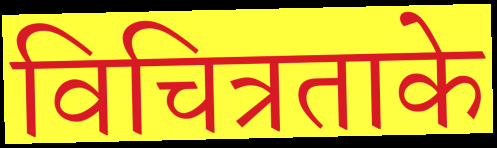
विचित्रताके